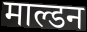
माल्डन